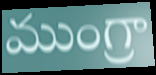
ముంగ్రా